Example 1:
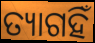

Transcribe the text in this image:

ତ୍ୟାଗହିଁ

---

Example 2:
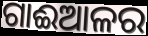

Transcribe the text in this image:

ଗାଈଆଳର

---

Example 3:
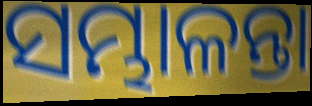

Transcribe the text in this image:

ସମ୍ଭାଳନ୍ତା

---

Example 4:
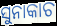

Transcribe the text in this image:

ସୁନାକାଚ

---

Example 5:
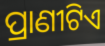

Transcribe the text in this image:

ପ୍ରାଣୀଟିଏ